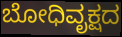
ಬೋಧಿವೃಕ್ಷದ